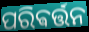
ପରିଵର୍ତ୍ତନ